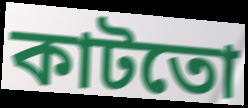
কাটতো